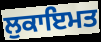
ਲੁਕਾਇਮਤ